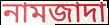
নামজাদা